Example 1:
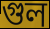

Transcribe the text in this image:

গুল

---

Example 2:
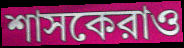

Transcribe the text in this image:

শাসকেরাও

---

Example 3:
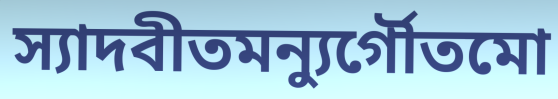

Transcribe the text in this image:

স্যাদবীতমন্যুর্গৌতমো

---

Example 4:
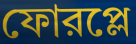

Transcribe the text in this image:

ফোরপ্লে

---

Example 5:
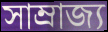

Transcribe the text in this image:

সাম্রাজ্য